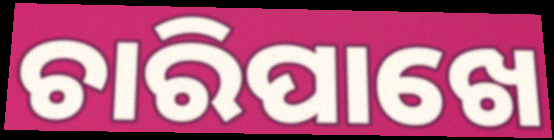
ଚାରିପାଖେ